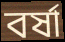
বর্ষা